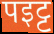
पइट्ट